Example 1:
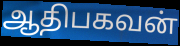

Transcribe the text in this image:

ஆதிபகவன்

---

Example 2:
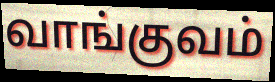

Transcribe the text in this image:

வாங்குவம்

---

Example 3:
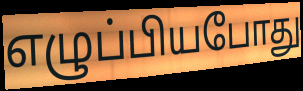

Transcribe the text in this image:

எழுப்பியபோது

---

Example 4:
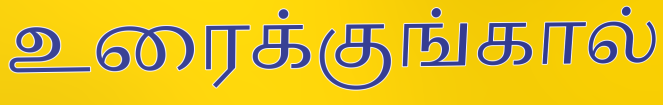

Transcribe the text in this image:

உரைக்குங்கால்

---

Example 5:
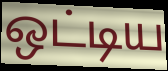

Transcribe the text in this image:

ஒட்டிய